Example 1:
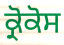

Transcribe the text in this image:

ਕ੍ਰੋਕੋਸ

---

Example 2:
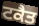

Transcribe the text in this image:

ਟਕੈਤ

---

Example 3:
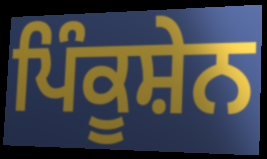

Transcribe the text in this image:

ਪਿੰਕੂਸ਼ੇਨ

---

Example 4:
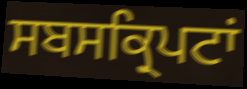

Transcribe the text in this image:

ਸਬਸਕ੍ਰਿਪਟਾਂ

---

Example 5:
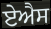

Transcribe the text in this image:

ਏਐਸ